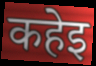
कहेइ